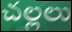
చల్లలు